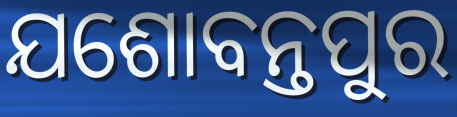
ଯଶୋବନ୍ତପୁର